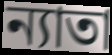
ন্যাতা